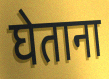
घेताना